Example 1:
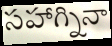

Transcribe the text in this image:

సహాగ్నినా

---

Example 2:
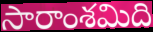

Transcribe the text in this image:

సారాంశమిది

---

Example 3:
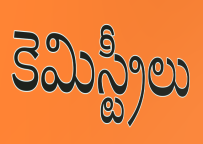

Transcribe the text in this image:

కెమిస్ట్రీలు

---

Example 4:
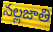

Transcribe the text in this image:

నల్లజాతి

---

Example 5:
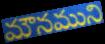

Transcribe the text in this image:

మౌనముని